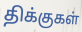
திக்குகள்